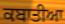
ਕਬਾਤੀਆ